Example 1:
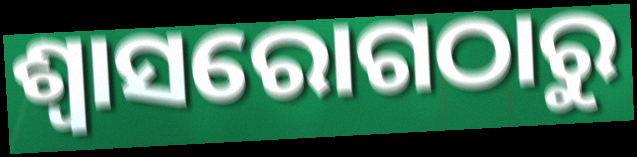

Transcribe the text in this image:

ଶ୍ୱାସରୋଗଠାରୁ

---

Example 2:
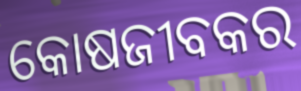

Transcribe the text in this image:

କୋଷଜୀବକର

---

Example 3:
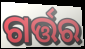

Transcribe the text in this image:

ଗର୍ତ୍ତର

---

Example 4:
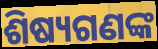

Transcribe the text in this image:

ଶିଷ୍ୟଗଣଙ୍କ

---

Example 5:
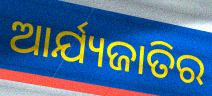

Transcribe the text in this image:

ଆର୍ଯ୍ୟଜାତିର